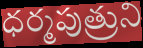
ధర్మపుత్రుని